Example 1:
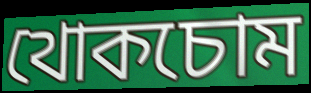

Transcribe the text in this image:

থোকচোম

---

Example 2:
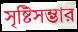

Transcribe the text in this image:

সৃষ্টিসম্ভার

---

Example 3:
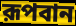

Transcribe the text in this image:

রূপবান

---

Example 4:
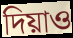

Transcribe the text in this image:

দিয়াও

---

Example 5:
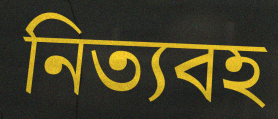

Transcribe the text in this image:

নিত্যবহ